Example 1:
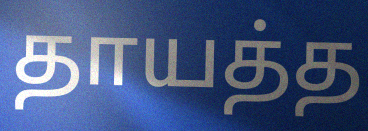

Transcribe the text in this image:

தாயத்த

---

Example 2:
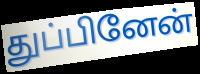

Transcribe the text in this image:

துப்பினேன்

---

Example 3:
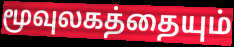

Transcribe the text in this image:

மூவுலகத்தையும்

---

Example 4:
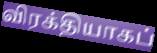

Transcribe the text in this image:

விரக்தியாகப்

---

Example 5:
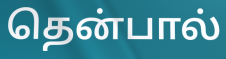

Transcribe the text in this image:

தென்பால்